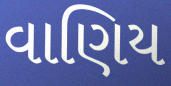
વાણિય